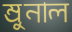
ম্রুনাল